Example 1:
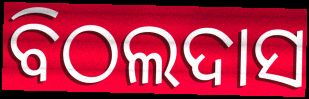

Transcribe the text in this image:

ବିଠଲଦାସ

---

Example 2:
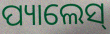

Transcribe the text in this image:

ପ୍ୟାଲେସ୍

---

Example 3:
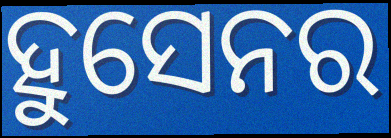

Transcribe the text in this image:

ହୁସେନର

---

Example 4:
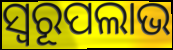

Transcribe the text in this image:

ସ୍ବରୂପଲାଭ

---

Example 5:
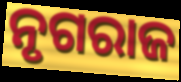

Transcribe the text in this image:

ନୃଗରାଜ